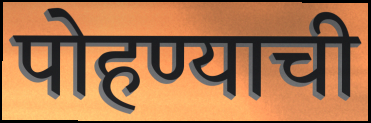
पोहण्याची